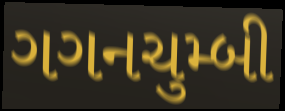
ગગનચુમ્બી